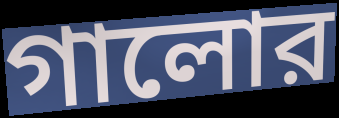
গালোর